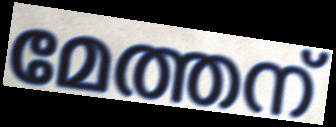
മേത്തന്